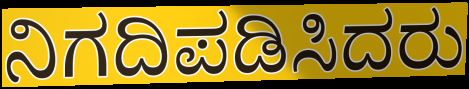
ನಿಗದಿಪಡಿಸಿದರು